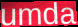
umda